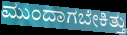
ಮುಂದಾಗಬೇಕಿತ್ತು